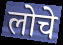
लोचे